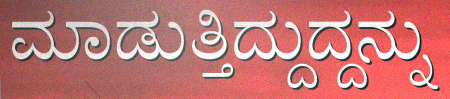
ಮಾಡುತ್ತಿದ್ದುದ್ದನ್ನು